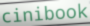
cinibook